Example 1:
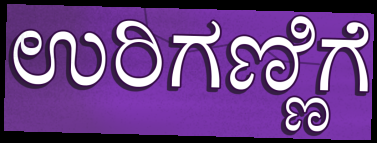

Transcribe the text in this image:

ಉರಿಗಣ್ಣಿಗೆ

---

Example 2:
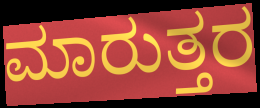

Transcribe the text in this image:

ಮಾರುತ್ತರ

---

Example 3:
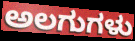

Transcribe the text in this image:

ಅಲಗುಗಳು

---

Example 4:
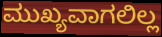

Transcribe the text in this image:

ಮುಖ್ಯವಾಗಲಿಲ್ಲ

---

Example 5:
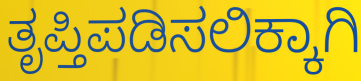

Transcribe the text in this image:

ತೃಪ್ತಿಪಡಿಸಲಿಕ್ಕಾಗಿ